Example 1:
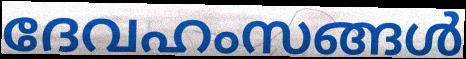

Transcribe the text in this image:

ദേവഹംസങ്ങൾ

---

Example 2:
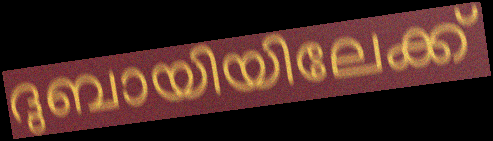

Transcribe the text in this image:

ദുബായിയിലേക്ക്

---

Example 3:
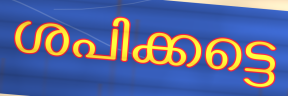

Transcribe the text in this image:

ശപിക്കട്ടെ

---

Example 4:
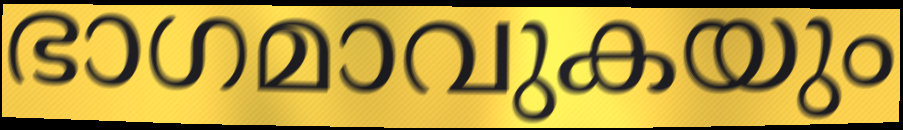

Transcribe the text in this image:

ഭാഗമാവുകയും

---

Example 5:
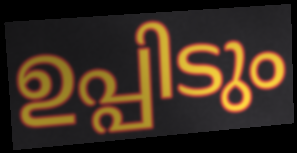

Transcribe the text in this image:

ഉപ്പിടും